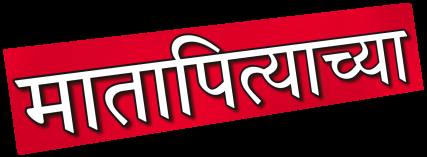
मातापित्याच्या